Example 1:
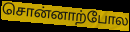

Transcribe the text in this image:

சொன்னாற்போல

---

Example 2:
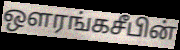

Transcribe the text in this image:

ஔரங்கசீபின்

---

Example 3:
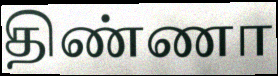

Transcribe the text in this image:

திண்ணா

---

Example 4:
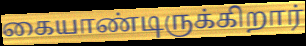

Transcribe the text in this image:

கையாண்டிருக்கிறார்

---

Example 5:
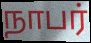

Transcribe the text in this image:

நாபர்